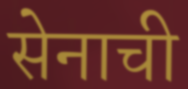
सेनाची